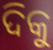
ଦିକୁ